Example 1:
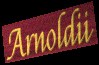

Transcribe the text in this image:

Arnoldii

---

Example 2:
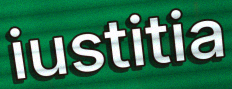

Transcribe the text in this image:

iustitia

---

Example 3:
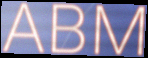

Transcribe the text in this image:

ABM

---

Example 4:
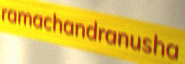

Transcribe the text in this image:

ramachandranusha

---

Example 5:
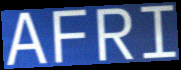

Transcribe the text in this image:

AFRI